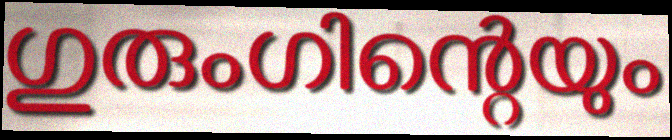
ഗുരുംഗിന്റെയും